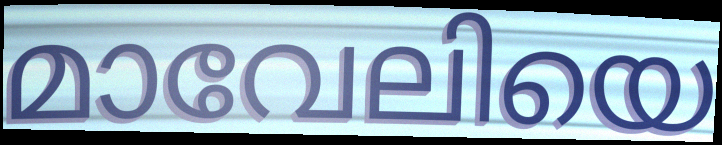
മാവേലിയെ